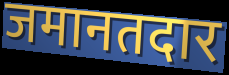
जमानतदार